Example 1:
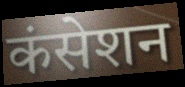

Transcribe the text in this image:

कंसेशन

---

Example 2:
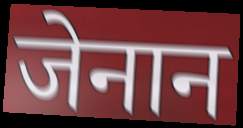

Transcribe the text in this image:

जेनान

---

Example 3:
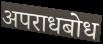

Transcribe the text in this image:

अपराधबोध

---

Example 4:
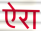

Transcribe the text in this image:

ऐरा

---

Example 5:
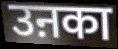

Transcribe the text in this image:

उऩका